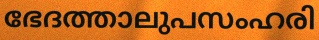
ഭേദത്താലുപസംഹരി